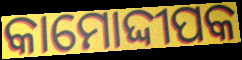
କାମୋଦ୍ଦୀପକ